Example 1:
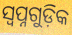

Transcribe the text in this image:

ସ୍ଵପ୍ନଗୁଡ଼ିକ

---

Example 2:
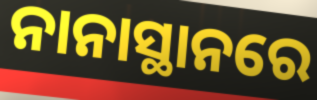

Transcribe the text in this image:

ନାନାସ୍ଥାନରେ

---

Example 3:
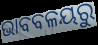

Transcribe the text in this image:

ଭାବବଳୟରୁ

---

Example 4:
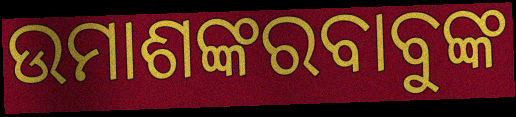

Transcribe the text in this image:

ଉମାଶଙ୍କରବାବୁଙ୍କ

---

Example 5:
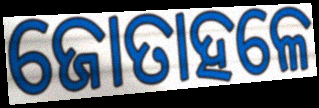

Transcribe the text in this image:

ଜୋତାହଳେ